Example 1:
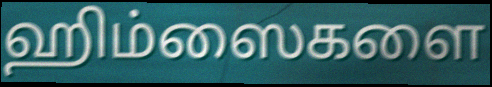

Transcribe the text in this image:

ஹிம்ஸைகளை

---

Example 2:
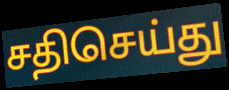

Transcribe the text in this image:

சதிசெய்து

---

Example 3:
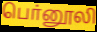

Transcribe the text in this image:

பெர்னூலி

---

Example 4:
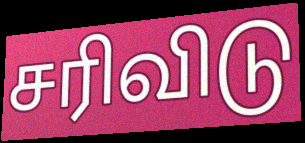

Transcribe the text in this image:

சரிவிடு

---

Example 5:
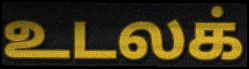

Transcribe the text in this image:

உடலக்